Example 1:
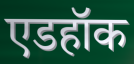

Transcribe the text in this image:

एडहॉक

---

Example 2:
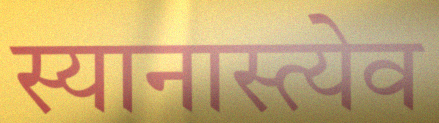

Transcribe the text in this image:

स्यानास्त्येव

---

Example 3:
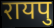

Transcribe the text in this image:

रायपु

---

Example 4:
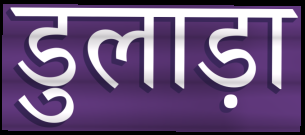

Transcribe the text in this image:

डुलाड़ा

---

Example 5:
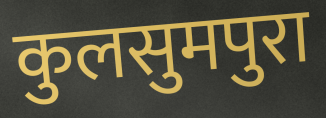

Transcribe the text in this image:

कुलसुमपुरा